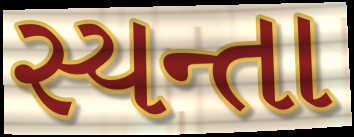
સ્યન્તા